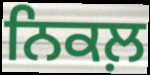
ਨਿਕਲ਼